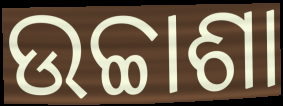
ଉଚ୍ଚାଶା